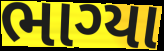
ભાગ્યા